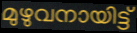
മുഴുവനായിട്ട്